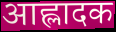
आह्लादक